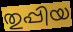
തുപ്പിയ